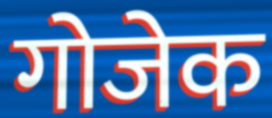
गोजेक